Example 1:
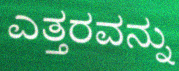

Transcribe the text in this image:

ಎತ್ತರವನ್ನು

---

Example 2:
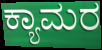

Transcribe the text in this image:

ಕ್ಯಾಮರ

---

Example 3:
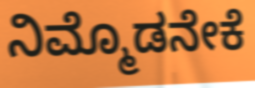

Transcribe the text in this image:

ನಿಮ್ಮೊಡನೇಕೆ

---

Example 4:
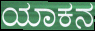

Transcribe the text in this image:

ಯಾಕನ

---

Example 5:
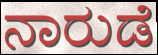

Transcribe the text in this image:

ನಾರುಡೆ